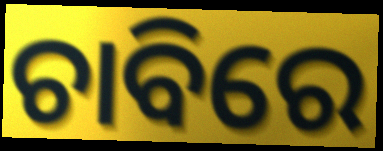
ଚାବିରେ